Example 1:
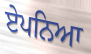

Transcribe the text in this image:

ਏਪਨਿਆ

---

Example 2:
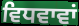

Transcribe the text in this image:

ਵਿਧਵਾਵਾਂ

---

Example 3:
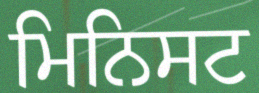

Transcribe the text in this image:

ਮਿਨਿਸਟ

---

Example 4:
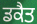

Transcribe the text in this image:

ਡਕੈਤ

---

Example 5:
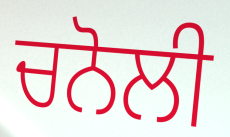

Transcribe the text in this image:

ਚਨੋਲੀ